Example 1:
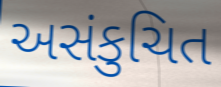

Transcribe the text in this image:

અસંકુચિત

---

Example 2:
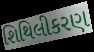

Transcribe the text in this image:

શિથિલીકરણ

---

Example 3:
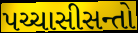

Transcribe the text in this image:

પચ્ચાસીસન્તો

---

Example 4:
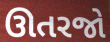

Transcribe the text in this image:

ઊતરજો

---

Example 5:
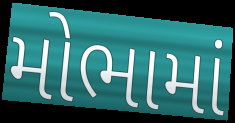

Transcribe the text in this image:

મોભામાં